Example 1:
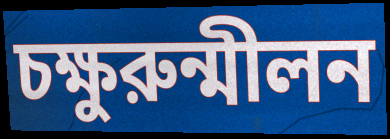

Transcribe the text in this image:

চক্ষুরুন্মীলন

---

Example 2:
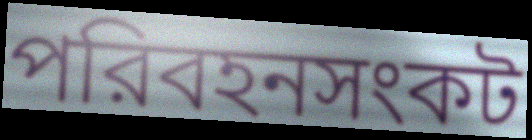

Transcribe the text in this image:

পরিবহনসংকট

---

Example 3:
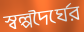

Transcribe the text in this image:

স্বল্পদৈর্ঘের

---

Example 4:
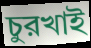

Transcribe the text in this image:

চুরখাই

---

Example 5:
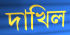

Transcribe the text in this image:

দাখিল